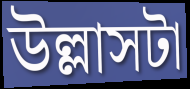
উল্লাসটা